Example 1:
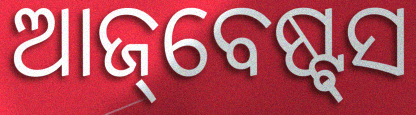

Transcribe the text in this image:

ଆଜ୍‌ବେଷ୍ଟ୍‌ସ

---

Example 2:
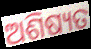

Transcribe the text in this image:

ଅଶିଷ୍ଯତ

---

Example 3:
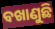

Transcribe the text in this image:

ବଖାଣୁଛି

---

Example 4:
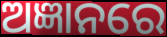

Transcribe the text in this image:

ଅଜ୍ଞାନରେ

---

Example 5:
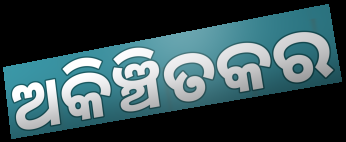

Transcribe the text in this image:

ଅକିଞ୍ଚିତକର